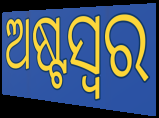
ଅଷ୍ଟସ୍ୱର